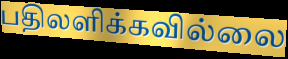
பதிலளிக்கவில்லை